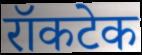
रॉकटेक